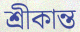
শ্রীকান্ত